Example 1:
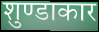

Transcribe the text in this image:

शुण्डाकार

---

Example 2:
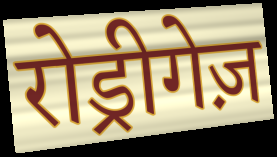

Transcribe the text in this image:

रोड्रीगेज़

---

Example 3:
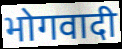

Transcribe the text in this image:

भोगवादी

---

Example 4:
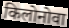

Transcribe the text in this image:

किलोनोवा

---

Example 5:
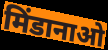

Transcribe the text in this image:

मिंडानाओ